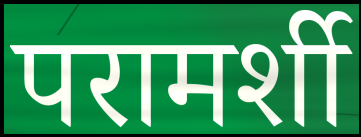
परामर्शी